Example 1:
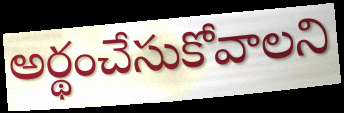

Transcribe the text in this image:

అర్థంచేసుకోవాలని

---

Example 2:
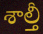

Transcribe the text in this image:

శాల్తీ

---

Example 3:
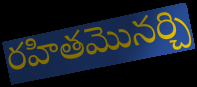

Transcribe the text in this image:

రహితమొనర్చి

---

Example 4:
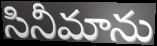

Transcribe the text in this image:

సినీమాను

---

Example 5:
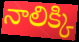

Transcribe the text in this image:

నాలిక్కి